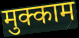
मुक्काम